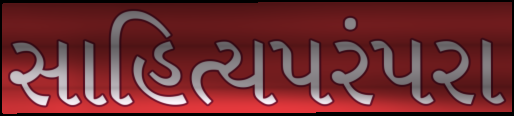
સાહિત્યપરંપરા